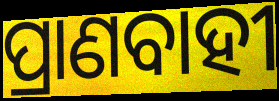
ପ୍ରାଣବାହୀ